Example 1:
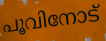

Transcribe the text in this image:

പൂവിനോട്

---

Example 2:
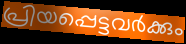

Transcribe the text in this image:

പ്രിയപ്പെട്ടവർക്കും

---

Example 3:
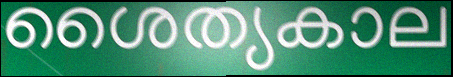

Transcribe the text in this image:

ശൈത്യകാല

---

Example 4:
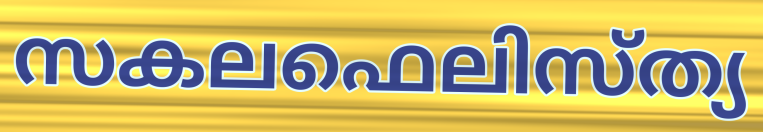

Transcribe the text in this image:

സകലഫെലിസ്ത്യ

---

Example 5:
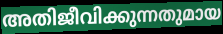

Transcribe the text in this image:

അതിജീവിക്കുന്നതുമായ